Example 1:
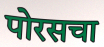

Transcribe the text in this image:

पोरसचा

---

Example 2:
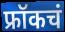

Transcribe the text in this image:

फ्रॉकचं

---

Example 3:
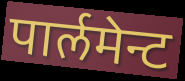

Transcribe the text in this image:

पार्लमेन्ट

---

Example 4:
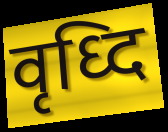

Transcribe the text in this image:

वृध्दि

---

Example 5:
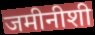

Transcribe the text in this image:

जमीनीशी